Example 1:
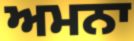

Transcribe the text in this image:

ਅਮਨਾ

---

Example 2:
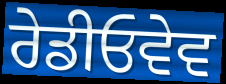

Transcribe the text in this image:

ਰੇਡੀਓਵੇਵ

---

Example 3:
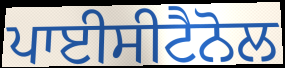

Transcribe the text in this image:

ਪਾਈਸੀਟੈਨੋਲ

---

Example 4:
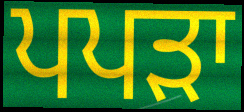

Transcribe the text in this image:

ਪਪੜਾ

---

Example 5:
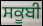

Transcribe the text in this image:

ਸਕੂਬੀ